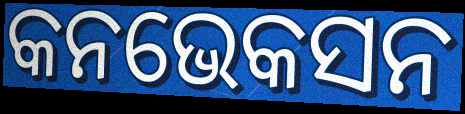
କନଭେକସନ